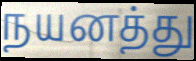
நயனத்து